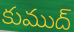
కుముద్